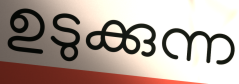
ഉടുക്കുന്ന